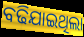
ବଢିଯାଇଥିଲା